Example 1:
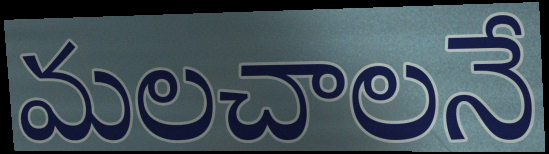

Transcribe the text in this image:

మలచాలనే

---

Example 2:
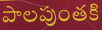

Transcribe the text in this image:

పాలపుంతకి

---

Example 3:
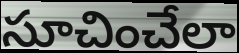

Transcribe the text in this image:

సూచించేలా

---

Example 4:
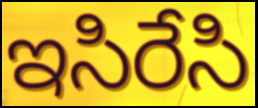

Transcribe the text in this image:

ఇసిరేసి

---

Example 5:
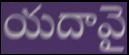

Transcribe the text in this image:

యదావై